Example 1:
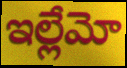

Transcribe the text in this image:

ఇల్లేమో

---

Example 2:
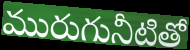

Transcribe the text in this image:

మురుగునీటితో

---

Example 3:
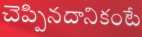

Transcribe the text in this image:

చెప్పినదానికంటే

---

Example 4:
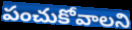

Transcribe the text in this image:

పంచుకోవాలని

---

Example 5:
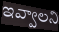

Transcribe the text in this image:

ఇవ్వాలని